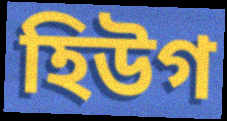
হিউগ